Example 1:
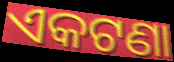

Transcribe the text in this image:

ଏକଟଣା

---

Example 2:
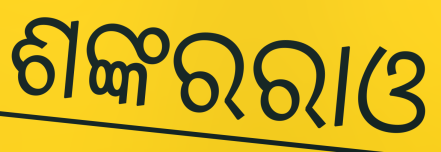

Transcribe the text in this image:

ଶଙ୍କରରାଓ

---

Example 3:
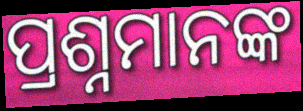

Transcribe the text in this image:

ପ୍ରଶ୍ନମାନଙ୍କ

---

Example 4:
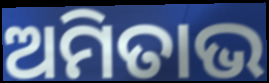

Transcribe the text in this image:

ଅମିତାଭ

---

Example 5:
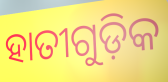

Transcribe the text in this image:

ହାତୀଗୁଡ଼ିକ